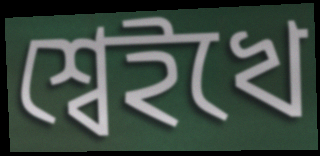
শ্বেইখে